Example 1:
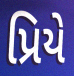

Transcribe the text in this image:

પ્રિયે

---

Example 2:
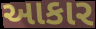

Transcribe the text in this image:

આકાર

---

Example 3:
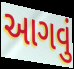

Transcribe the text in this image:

આગવું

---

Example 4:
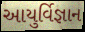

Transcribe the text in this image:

આયુર્વિજ્ઞાન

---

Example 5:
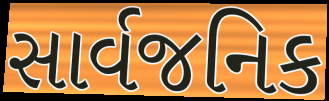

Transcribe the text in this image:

સાર્વજનિક